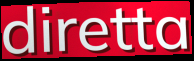
diretta